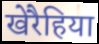
खेरैहिया